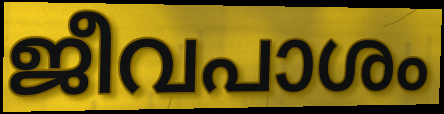
ജീവപാശം